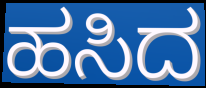
ಹಸಿದ